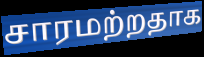
சாரமற்றதாக